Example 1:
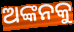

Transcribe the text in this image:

ଅଙ୍କନକୁ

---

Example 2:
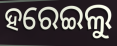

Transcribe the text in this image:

ହରେଇଲୁ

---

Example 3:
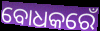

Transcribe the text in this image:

ବୋଧକରେଁ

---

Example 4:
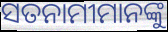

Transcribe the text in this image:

ସତନାମୀମାନଙ୍କୁ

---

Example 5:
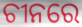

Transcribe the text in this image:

ଚୀନରେ